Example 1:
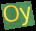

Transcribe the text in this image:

Oy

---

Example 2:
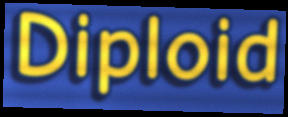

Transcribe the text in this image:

Diploid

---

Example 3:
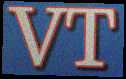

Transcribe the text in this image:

VT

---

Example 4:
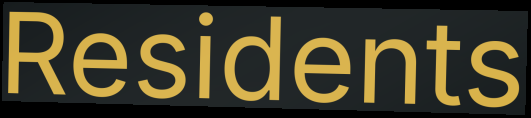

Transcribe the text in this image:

Residents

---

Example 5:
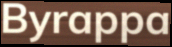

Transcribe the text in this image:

Byrappa